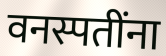
वनस्‍पतींना